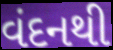
વંદનથી